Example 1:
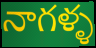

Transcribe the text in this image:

నాగళ్ళ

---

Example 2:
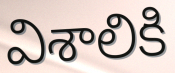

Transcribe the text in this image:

విశాలికి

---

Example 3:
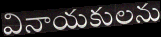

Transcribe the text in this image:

వినాయకులను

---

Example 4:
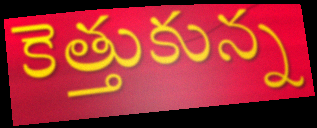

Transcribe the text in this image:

కెత్తుకున్న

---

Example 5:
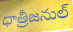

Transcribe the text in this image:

ధాత్రీజనుల్